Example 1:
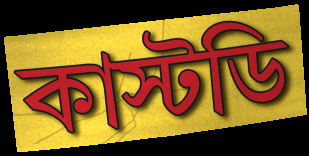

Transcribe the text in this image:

কাস্টডি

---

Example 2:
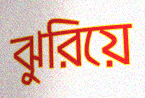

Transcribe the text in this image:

ঝুরিয়ে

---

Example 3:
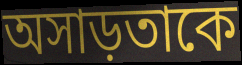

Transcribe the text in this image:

অসাড়তাকে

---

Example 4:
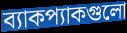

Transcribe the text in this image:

ব্যাকপ্যাকগুলো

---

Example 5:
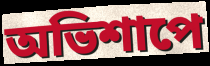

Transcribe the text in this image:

অভিশাপে